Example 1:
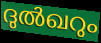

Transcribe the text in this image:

ദുൽഖറും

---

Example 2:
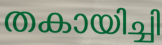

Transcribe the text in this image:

തകായിച്ചി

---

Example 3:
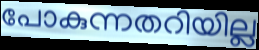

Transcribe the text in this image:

പോകുന്നതറിയില്ല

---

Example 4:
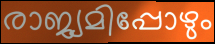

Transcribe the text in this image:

രാജ്യമിപ്പോഴും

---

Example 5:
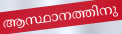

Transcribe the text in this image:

ആസ്ഥാനത്തിനു